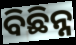
ବିଛିନ୍ନ